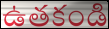
ఉతకండి